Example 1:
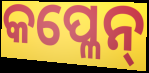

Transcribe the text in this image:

କପ୍ଳେନ୍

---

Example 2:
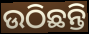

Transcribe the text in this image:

ଉଠିଛନ୍ତି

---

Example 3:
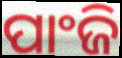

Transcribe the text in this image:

ପାଂଜି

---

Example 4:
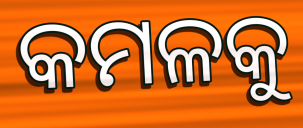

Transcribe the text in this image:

କମଳକୁ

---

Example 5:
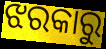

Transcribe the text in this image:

ଝରକାରୁ